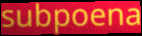
subpoena